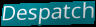
Despatch